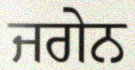
ਜਗੇਨ